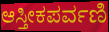
ಆಸ್ತೀಕಪರ್ವಣಿ